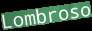
Lombroso